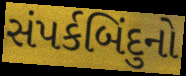
સંપર્કબિંદુનો